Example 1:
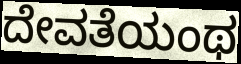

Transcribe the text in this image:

ದೇವತೆಯಂಥ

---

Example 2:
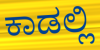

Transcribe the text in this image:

ಕಾಡಲ್ಲಿ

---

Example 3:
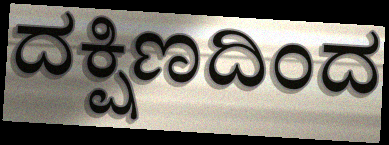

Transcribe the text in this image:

ದಕ್ಷಿಣದಿಂದ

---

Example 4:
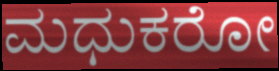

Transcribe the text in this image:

ಮಧುಕರೋ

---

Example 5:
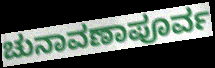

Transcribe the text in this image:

ಚುನಾವಣಾಪೂರ್ವ